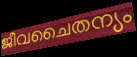
ജീവചൈതന്യം